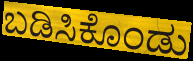
ಬಡಿಸಿಕೊಂಡು